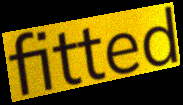
fitted